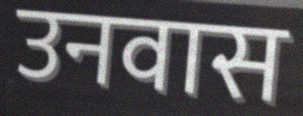
उनवास